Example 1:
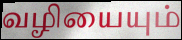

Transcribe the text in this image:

வழியையும்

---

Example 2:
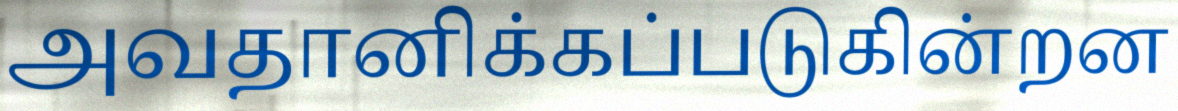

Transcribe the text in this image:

அவதானிக்கப்படுகின்றன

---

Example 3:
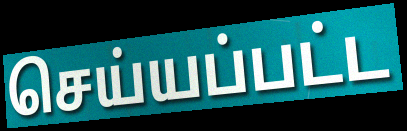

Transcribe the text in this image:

செய்யப்பட்ட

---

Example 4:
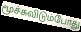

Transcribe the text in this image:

மூச்சுவிடும்போது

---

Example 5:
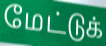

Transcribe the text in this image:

மேட்டுக்